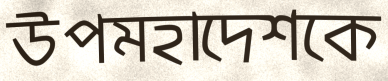
উপমহাদেশকে